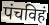
पंचविहं